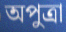
অপুত্রা